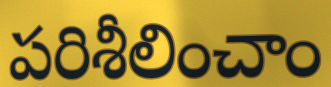
పరిశీలించాం